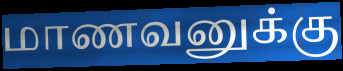
மாணவனுக்கு